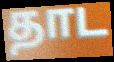
தாட